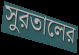
সুরতালের